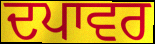
ਦਪਾਵਰ